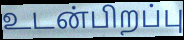
உடன்பிறப்பு